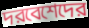
দরবেশেদের